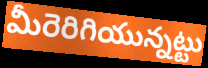
మీరెరిగియున్నట్టు